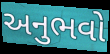
અનુભવો